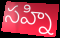
సహ్ని